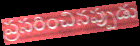
ప్రసరించినప్పుడు